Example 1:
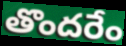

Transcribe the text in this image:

తొందరేం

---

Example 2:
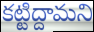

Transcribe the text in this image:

కట్టిద్దామని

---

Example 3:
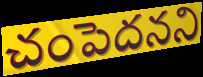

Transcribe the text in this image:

చంపెదనని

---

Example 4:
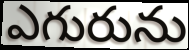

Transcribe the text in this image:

ఎగురును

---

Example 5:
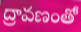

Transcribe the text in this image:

ద్రావణంతో